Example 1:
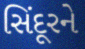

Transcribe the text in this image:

સિંદૂરને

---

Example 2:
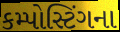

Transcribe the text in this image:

કમ્પોસ્ટિંગના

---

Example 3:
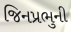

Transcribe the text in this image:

જિનપ્રભુની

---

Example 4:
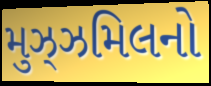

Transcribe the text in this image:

મુઝ્ઝમિલનો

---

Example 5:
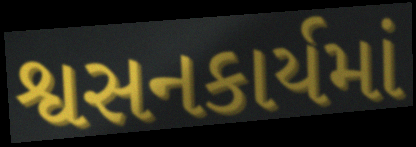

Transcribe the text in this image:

શ્વસનકાર્યમાં